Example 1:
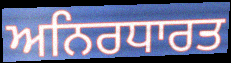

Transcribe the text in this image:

ਅਨਿਰਧਾਰਤ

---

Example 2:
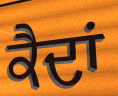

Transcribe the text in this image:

ਕੈਦਾਂ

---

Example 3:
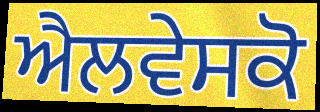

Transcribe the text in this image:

ਐਲਵੇਸਕੋ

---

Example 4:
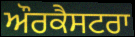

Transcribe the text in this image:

ਔਰਕੈਸਟਰਾ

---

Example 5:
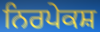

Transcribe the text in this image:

ਨਿਰਪੇਕਸ਼